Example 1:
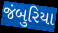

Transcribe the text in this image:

જંબુરિયા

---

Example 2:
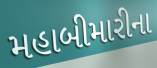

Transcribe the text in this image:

મહાબીમારીના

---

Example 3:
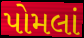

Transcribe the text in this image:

પોમલાં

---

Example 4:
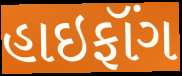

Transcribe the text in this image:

હાઇફૉંગ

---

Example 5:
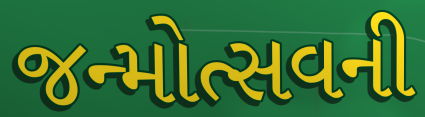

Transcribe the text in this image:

જન્મોત્સવની